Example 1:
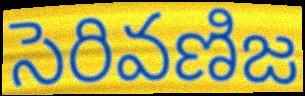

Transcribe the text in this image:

సెరివణిజ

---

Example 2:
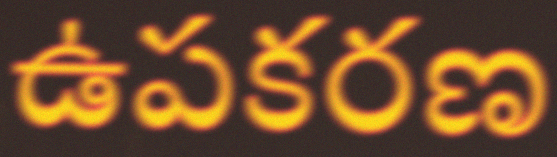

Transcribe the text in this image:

ఉపకరణ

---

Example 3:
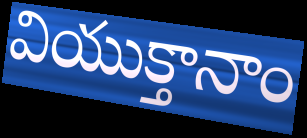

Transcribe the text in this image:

వియుక్తానాం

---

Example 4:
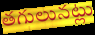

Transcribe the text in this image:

తగులునట్లు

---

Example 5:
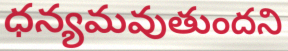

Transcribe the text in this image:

ధన్యమవుతుందని